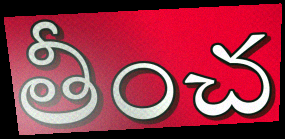
తీంచ